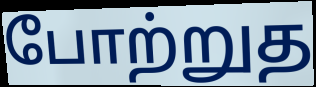
போற்றுத